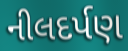
નીલદર્પણ